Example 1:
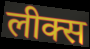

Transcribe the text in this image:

लीक्स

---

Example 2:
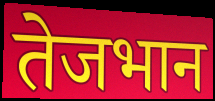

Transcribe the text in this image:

तेजभान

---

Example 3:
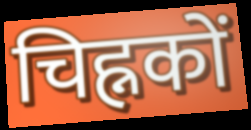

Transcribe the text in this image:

चिह्नकों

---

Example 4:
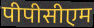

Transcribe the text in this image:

पीपीसीएम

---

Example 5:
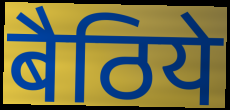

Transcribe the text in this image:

बैठिये